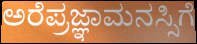
ಅರೆಪ್ರಜ್ಞಾಮನಸ್ಸಿಗೆ